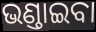
ଭଣ୍ଡାଇବା